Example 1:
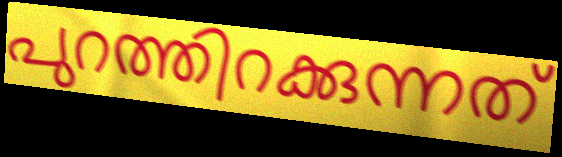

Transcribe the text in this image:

പുറത്തിറക്കുന്നത്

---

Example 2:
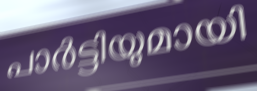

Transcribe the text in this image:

പാർട്ടിയുമായി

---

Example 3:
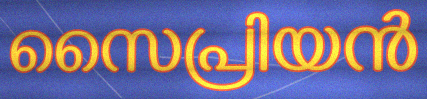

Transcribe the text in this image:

സൈപ്രിയൻ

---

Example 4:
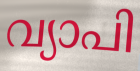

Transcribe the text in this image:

വ്യാപി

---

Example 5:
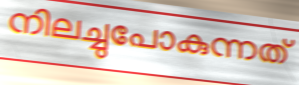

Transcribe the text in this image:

നിലച്ചുപോകുന്നത്